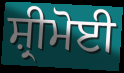
ਸ਼੍ਰੀਮੋਈ